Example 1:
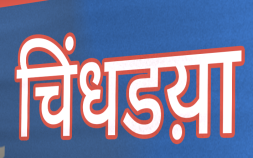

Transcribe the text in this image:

चिंधडय़ा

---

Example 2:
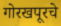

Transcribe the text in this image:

गोरखपूरचे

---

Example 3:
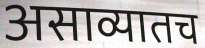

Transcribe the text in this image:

असाव्यातच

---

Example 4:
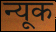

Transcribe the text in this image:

न्यूक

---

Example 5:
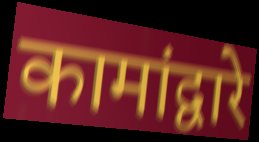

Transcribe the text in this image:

कामांद्वारे